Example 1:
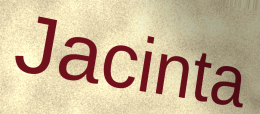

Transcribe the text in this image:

Jacinta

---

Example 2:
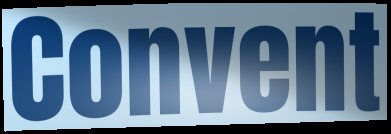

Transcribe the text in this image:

Convent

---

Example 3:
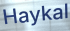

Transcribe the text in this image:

Haykal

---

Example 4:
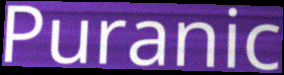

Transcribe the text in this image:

Puranic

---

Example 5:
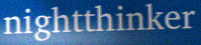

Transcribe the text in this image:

nightthinker